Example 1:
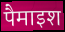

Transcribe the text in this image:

पैमाइश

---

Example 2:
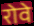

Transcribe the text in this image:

रोवे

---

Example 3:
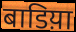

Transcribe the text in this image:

बाडिय़ा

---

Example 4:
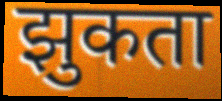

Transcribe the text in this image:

झुकता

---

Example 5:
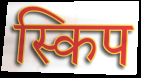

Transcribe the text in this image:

स्किप